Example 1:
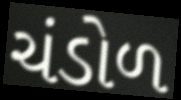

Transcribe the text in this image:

ચંડોળ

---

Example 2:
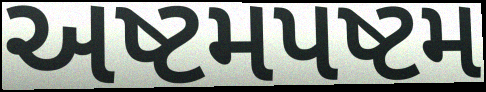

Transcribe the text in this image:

અષ્ટમપષ્ટમ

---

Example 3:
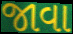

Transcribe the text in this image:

જાવા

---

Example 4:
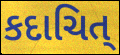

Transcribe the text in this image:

કદાચિત્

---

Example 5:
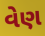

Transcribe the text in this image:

વેણ